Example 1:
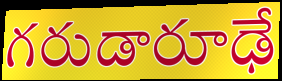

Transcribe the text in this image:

గరుడారూఢే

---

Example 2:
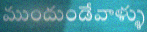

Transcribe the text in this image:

ముందుండేవాళ్ళు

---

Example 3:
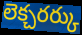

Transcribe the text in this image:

లెక్చరర్కు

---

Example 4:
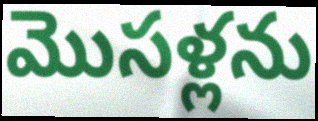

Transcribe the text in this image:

మొసళ్లను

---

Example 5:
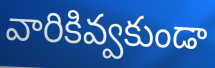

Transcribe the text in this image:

వారికివ్వకుండా